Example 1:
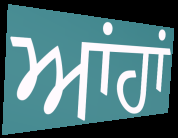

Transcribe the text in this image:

ਆਂਹਾਂ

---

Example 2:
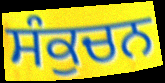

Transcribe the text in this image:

ਸੰਕੁਚਨ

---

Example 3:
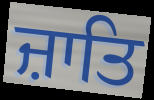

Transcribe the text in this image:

ਜ਼ਾਤਿ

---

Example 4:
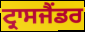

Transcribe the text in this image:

ਟ੍ਰਾਸਜੈਂਡਰ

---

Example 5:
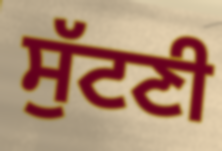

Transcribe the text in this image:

ਸੁੱਟਣੀ